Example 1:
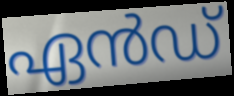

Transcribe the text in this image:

ഏൻഡ്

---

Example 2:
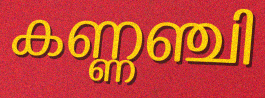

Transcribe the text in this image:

കണ്ണഞ്ചി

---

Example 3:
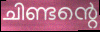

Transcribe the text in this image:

ചിണ്ടന്റെ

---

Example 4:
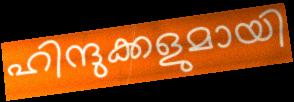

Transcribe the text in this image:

ഹിന്ദുക്കളുമായി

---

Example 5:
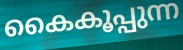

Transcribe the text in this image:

കൈകൂപ്പുന്ന